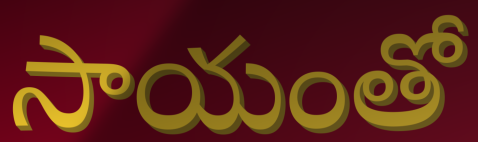
సాయంతో